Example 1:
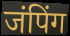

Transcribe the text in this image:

जंपिंग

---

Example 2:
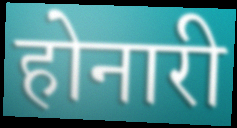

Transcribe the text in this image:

होनारी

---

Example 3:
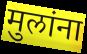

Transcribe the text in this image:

मुलांना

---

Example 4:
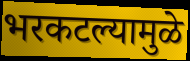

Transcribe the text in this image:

भरकटल्यामुळे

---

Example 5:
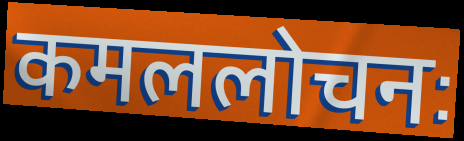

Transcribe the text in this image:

कमललोचनः